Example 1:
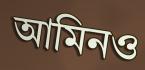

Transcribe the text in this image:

আমিনও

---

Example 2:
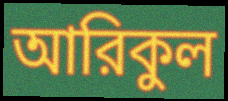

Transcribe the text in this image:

আরিকুল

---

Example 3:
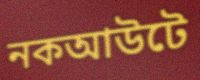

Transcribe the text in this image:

নকআউটে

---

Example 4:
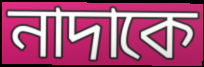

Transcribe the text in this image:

নাদাকে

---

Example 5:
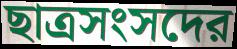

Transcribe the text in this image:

ছাত্রসংসদের